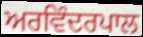
ਅਰਵਿੰਦਰਪਾਲ